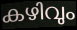
കഴിവും